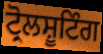
ਟ੍ਰੋਲਸ਼ੂਟਿੰਗ